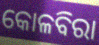
କୋଳବିରା